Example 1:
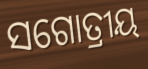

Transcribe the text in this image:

ସଗୋତ୍ରୀୟ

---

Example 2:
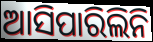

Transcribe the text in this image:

ଆସିପାରିଲିନି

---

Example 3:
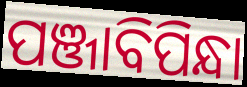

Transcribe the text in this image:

ପଞ୍ଜାବିପିନ୍ଧା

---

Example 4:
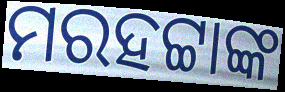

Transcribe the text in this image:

ମରହଟ୍ଟାଙ୍କ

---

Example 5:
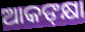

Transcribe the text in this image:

ଆକଙ୍‌କ୍ଷା